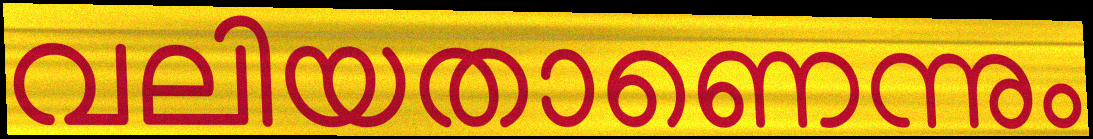
വലിയതാണെന്നും